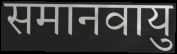
समानवायु